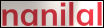
nanilal